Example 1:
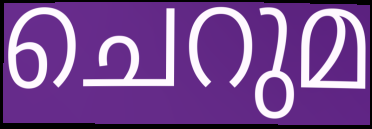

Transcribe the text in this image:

ചെറുമ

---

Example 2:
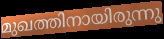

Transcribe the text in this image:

മുഖത്തിനായിരുന്നു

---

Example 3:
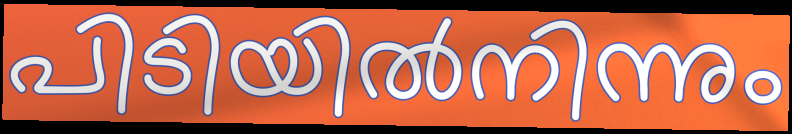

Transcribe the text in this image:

പിടിയിൽനിന്നും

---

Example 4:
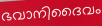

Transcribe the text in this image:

ഭവാനിദൈവം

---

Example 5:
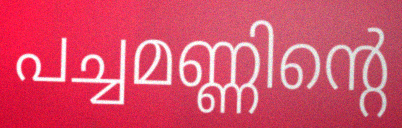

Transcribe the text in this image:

പച്ചമണ്ണിന്റെ